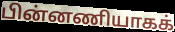
பின்னணியாகக்